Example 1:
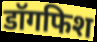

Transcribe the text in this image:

डॉगफिश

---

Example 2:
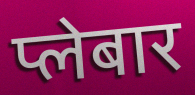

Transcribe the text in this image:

प्लेबार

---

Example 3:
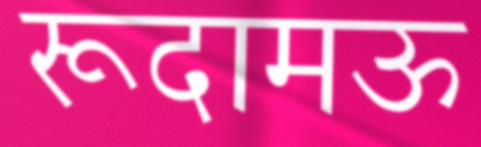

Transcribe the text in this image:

रूदामऊ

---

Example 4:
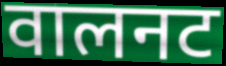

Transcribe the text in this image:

वालनट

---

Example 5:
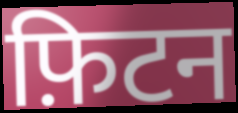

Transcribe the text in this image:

फ़िटन